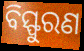
ବିସ୍ଫୁରଣ